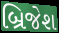
બ્રિજેશ